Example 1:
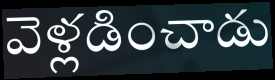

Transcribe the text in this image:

వెళ్లడించాడు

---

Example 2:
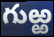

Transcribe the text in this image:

గుఱ్ఱ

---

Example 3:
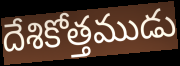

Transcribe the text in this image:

దేశికోత్తముడు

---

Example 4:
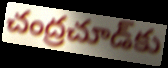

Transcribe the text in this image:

చంద్రచూడ్‌కు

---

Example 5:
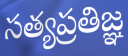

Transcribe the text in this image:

సత్యప్రతిజ్ఞ